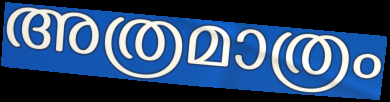
അത്രമാത്രം